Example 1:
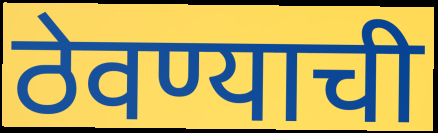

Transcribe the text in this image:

ठेवण्याची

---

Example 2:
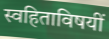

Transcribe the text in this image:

स्वहिताविषयीं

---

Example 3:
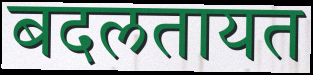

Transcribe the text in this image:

बदलतायत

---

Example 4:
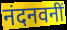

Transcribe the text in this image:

नंदनवनीं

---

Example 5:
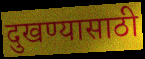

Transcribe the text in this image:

दुखण्यासाठी